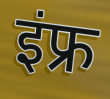
इंफ्र